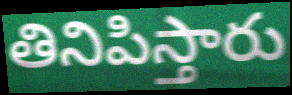
తినిపిస్తారు